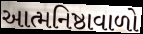
આત્મનિષ્ઠાવાળો